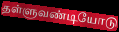
தள்ளுவண்டியோடு